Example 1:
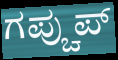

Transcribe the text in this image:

ಗಪ್ಚುಪ್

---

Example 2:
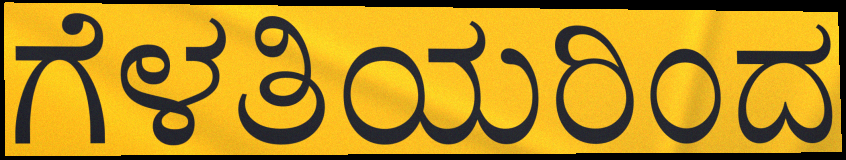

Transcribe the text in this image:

ಗೆಳತಿಯರಿಂದ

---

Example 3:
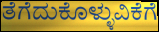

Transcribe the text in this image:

ತೆಗೆದುಕೊಳ್ಳುವಿಕೆಗೆ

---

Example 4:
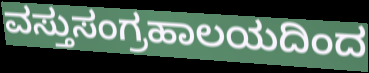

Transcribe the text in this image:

ವಸ್ತುಸಂಗ್ರಹಾಲಯದಿಂದ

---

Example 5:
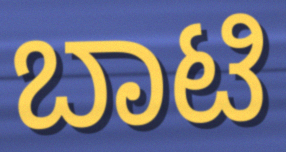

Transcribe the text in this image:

ಬಾಟಿ